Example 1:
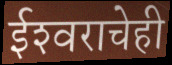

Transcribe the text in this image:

ईश्वराचेही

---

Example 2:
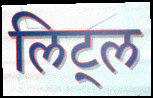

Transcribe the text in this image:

लिट्ल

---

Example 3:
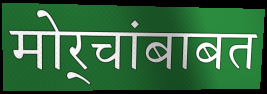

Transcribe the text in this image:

मोर्चांबाबत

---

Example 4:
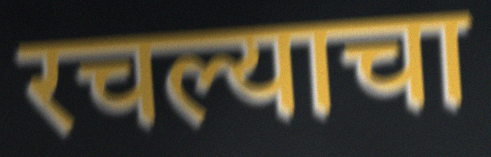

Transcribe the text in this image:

रचल्याचा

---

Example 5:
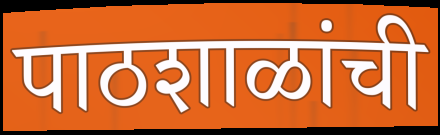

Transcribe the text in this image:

पाठशाळांची